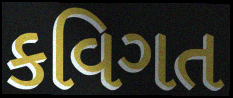
કવિગત